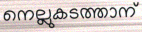
നെല്ലുകടത്താന്